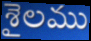
శైలము